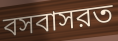
বসবাসরত